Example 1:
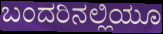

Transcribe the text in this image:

ಬಂದರಿನಲ್ಲಿಯೂ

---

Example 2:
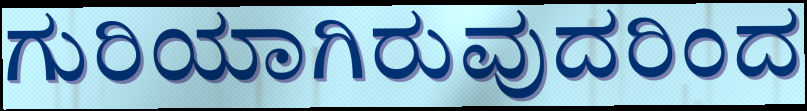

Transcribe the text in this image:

ಗುರಿಯಾಗಿರುವುದರಿಂದ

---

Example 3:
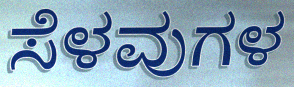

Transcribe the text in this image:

ಸೆಳವುಗಳ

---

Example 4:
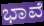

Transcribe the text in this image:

ಭಾವೆ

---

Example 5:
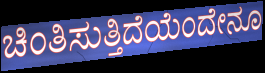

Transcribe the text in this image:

ಚಿಂತಿಸುತ್ತಿದೆಯೆಂದೇನೂ